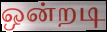
ஒன்றடி